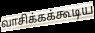
வாசிக்கக்கூடிய